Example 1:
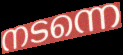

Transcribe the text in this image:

നടന്നെ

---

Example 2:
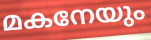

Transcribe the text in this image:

മകനേയും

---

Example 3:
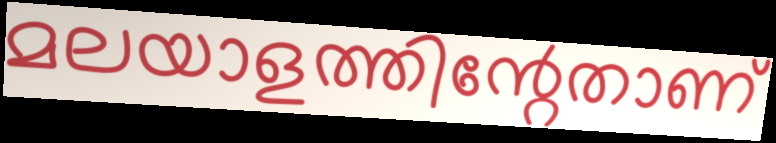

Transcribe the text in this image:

മലയാളത്തിന്റേതാണ്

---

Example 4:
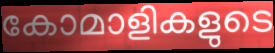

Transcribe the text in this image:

കോമാളികളുടെ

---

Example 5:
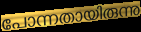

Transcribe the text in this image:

പോന്നതായിരുന്നു